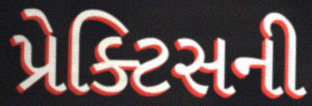
પ્રેક્ટિસની